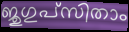
ജുഗുപ്സിതാം